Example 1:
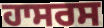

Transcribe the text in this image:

ਹਾਸਰਸ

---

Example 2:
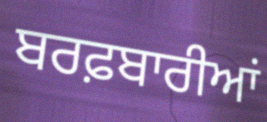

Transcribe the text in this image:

ਬਰਫ਼ਬਾਰੀਆਂ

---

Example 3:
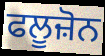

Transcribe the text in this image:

ਫਲੂਜ਼ੋਨ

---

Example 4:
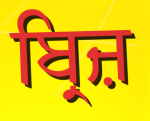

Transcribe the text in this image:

ਬ੍ਰਿਜ਼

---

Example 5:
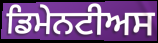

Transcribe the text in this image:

ਡਿਮੇਨਟੀਅਸ